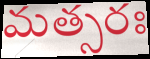
మత్సరః